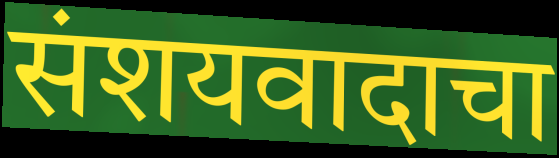
संशयवादाचा